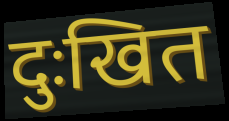
दुःखित